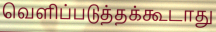
வெளிப்படுத்தக்கூடாது